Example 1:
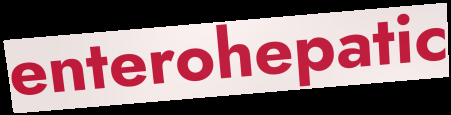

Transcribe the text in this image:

enterohepatic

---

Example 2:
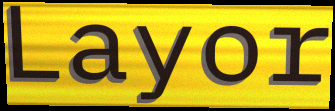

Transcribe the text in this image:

Layor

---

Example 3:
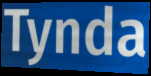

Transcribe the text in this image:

Tynda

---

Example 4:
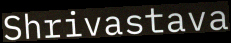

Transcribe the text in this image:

Shrivastava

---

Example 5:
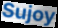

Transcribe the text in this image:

Sujoy